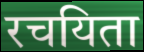
रचयिता